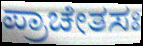
ಪ್ರಾಚೇತಸಃ